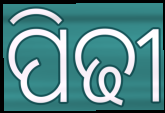
ପିଢୀ